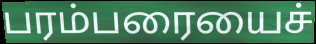
பரம்பரையைச்